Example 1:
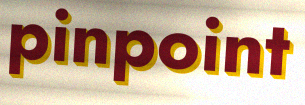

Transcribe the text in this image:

pinpoint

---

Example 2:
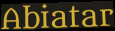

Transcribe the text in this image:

Abiatar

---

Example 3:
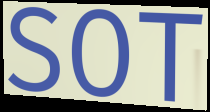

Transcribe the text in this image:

SOT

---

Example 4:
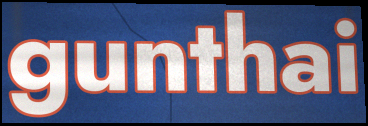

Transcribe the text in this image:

gunthai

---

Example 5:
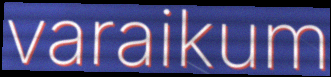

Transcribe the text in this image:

varaikum